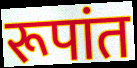
रूपांत